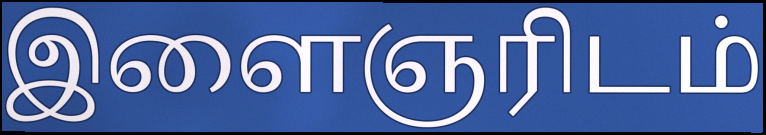
இளைஞரிடம்